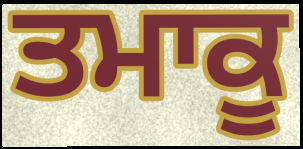
ਤਮਾਕੂ